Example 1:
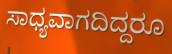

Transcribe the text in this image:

ಸಾಧ್ಯವಾಗದಿದ್ದರೂ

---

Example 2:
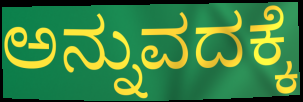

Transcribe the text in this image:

ಅನ್ನುವದಕ್ಕೆ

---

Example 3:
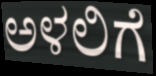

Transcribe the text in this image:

ಅಳಲಿಗೆ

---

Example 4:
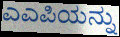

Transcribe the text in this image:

ಎಎಪಿಯನ್ನು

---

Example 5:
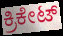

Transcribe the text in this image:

ಕ್ರಿಕೇಟ್